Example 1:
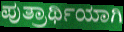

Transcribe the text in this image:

ಪುತ್ರಾರ್ಥಿಯಾಗಿ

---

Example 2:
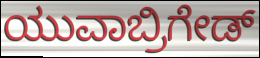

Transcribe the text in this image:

ಯುವಾಬ್ರಿಗೇಡ್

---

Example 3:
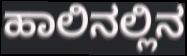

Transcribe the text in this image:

ಹಾಲಿನಲ್ಲಿನ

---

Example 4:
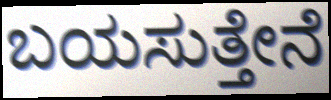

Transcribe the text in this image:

ಬಯಸುತ್ತೇನೆ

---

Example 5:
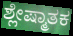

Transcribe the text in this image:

ಶ್ಲೇಷ್ಮಾತಕ